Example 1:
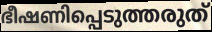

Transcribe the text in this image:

ഭീഷണിപ്പെടുത്തരുത്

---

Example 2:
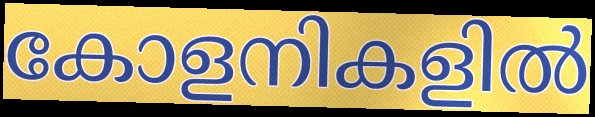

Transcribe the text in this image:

കോളനികളിൽ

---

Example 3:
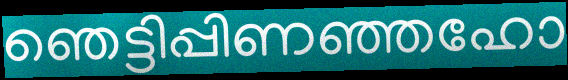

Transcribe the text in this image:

ഞെട്ടിപ്പിണഞ്ഞഹോ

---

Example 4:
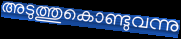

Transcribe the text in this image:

അടുത്തുകൊണ്ടുവന്നു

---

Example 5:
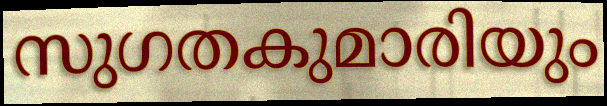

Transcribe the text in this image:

സുഗതകുമാരിയും